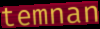
temnan